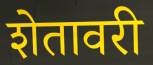
शेतावरी